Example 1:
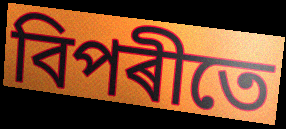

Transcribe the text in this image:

বিপৰীতে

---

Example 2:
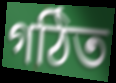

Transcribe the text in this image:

গঠিত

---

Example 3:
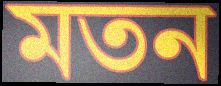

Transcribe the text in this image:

মতন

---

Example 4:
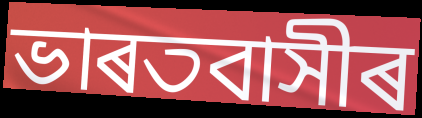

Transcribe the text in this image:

ভাৰতবাসীৰ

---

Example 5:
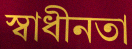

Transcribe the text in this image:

স্বাধীনতা